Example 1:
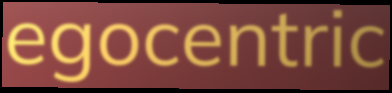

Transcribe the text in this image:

egocentric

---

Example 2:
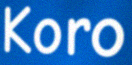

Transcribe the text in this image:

Koro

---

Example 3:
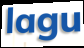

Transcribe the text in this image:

lagu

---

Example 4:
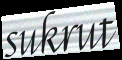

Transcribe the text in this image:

sukrut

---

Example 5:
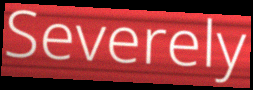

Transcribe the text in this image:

Severely